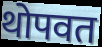
थोपवत